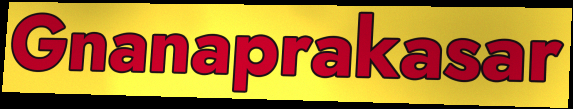
Gnanaprakasar